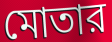
মোতার